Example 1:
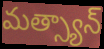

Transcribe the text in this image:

మత్స్యాన్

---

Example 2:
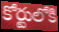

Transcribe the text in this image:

కోర్టులోకి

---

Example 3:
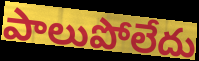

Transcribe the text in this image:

పాలుపోలేదు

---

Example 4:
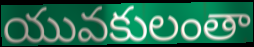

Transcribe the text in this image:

యువకులంతా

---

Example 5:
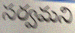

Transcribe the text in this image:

సర్వమని